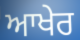
ਆਖੇਰ